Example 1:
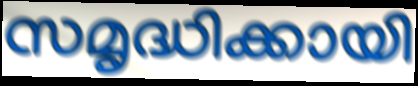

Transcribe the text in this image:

സമൃദ്ധിക്കായി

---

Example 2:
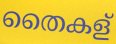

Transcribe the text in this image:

തൈകള്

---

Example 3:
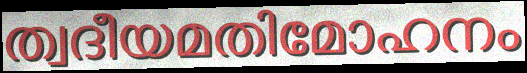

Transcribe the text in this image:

ത്വദീയമതിമോഹനം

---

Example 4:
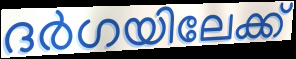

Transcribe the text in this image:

ദർഗയിലേക്ക്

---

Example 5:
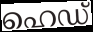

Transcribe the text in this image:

ഹെഡ്